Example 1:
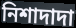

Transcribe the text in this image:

নিশাদাদা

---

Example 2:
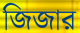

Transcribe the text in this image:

জিজার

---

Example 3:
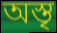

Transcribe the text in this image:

অস্তৃ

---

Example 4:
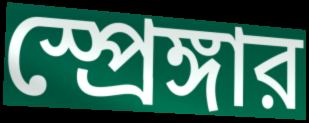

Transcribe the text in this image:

স্প্রেঙ্গার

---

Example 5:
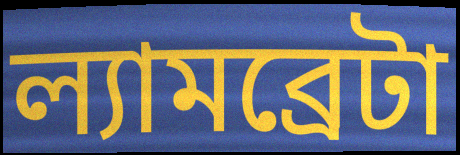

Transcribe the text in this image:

ল্যামব্রেটা